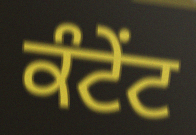
ਕੰਟੇਂਟ